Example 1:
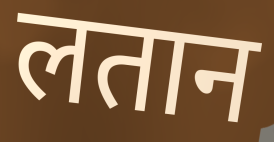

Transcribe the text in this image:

लतान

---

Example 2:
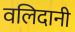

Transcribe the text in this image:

वलिदानी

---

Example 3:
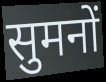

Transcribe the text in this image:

सुमनों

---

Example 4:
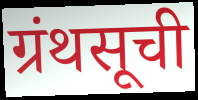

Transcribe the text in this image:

ग्रंथसूची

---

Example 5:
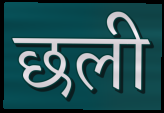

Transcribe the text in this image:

छली